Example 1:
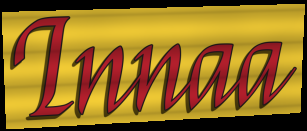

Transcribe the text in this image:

Innaa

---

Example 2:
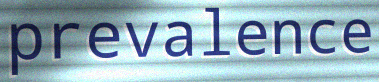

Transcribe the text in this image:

prevalence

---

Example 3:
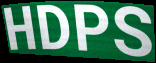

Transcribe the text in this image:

HDPS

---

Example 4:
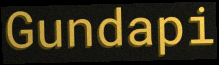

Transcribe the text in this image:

Gundapi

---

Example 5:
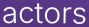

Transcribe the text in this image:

actors